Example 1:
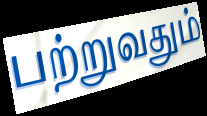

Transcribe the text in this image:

பற்றுவதும்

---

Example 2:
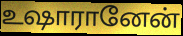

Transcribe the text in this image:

உஷாரானேன்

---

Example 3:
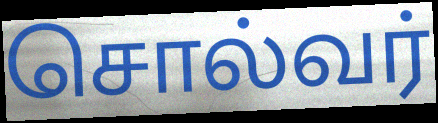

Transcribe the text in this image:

சொல்வர்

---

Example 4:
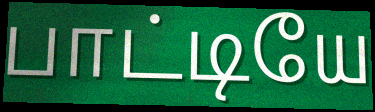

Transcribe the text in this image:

பாட்டியே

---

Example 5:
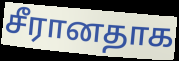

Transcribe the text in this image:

சீரானதாக